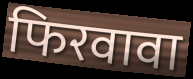
फिरवावा